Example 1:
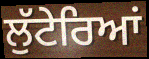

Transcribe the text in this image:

ਲੁੱਟੇਰਿਆਂ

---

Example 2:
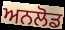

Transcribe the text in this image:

ਅਨਲੋਡ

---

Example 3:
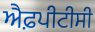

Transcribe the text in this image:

ਐਫ਼ਪੀਟੀਸੀ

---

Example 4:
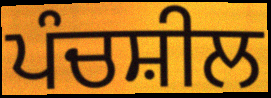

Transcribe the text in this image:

ਪੰਚਸ਼ੀਲ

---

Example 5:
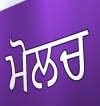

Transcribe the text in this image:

ਮੋਲਚ